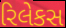
રિલેકસ